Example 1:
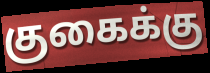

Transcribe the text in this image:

குகைக்கு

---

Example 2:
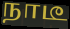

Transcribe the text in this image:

நாடீ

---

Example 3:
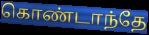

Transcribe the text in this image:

கொண்டாந்தே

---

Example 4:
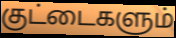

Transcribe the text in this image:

குட்டைகளும்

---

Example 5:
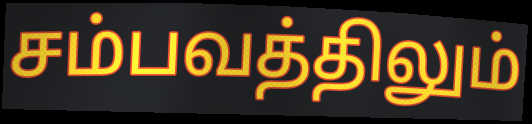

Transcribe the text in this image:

சம்பவத்திலும்